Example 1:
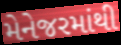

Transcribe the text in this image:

મેનેજરમાંથી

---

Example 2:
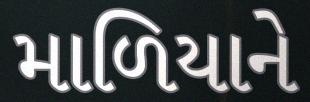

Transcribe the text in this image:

માળિયાને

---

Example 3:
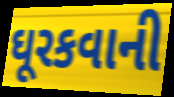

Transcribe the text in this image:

ઘૂરકવાની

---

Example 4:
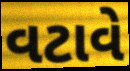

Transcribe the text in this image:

વટાવે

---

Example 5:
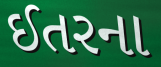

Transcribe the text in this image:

ઈતરના